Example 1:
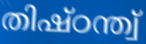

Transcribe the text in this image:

തിഷ്ഠന്ത്വ്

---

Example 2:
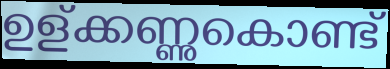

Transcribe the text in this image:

ഉള്ക്കണ്ണുകൊണ്ട്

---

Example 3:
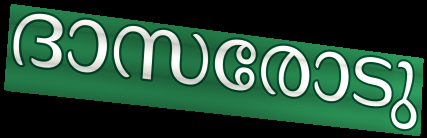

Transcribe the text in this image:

ദാസരോടു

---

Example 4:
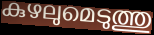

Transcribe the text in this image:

കുഴലുമെടുത്തു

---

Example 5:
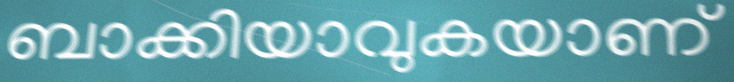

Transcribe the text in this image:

ബാക്കിയാവുകയാണ്